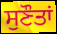
ਸੁਣੌਤਾਂ